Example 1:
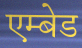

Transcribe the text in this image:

एम्बेड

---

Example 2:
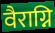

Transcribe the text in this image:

वैराग्नि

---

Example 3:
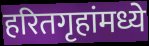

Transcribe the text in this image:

हरितगृहांमध्ये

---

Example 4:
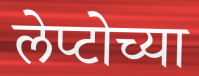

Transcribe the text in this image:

लेप्टोच्या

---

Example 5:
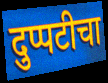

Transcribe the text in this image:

दुप्पटीचा